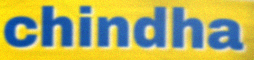
chindha